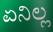
ಏನಿಲ್ಲ